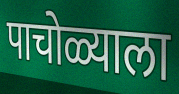
पाचोळ्याला